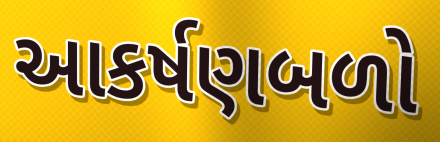
આકર્ષણબળો